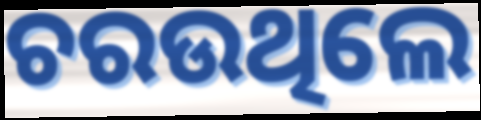
ଚରଉଥିଲେ